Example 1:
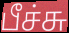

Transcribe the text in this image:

பீச்சு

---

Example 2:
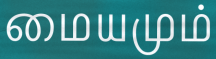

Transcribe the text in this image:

மையமும்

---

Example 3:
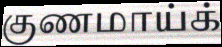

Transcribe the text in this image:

குணமாய்க்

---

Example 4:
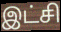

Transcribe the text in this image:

இட்சி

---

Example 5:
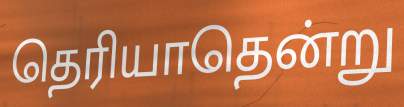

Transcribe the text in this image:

தெரியாதென்று